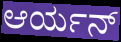
ಆರ್ಯನ್